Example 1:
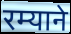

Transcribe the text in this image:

रम्याने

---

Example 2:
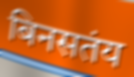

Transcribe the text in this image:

बिनसतंय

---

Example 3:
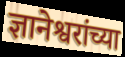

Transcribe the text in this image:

ज्ञानेश्वरांच्या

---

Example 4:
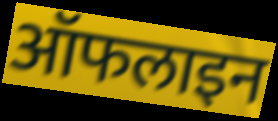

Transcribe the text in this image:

ऑफलाइन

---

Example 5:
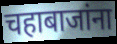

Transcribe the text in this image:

चहाबाजांना